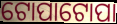
ଟୋପାଟୋପା